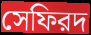
সেফিরদ